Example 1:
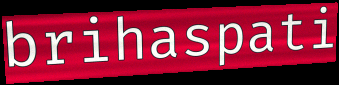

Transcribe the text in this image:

brihaspati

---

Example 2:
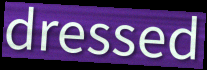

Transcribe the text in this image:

dressed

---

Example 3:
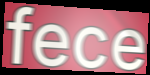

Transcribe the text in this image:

fece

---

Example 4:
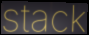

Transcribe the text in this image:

stack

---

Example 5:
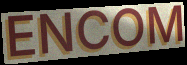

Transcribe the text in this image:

ENCOM